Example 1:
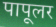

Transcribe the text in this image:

पापूलर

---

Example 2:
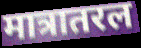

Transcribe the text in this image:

मात्रातरल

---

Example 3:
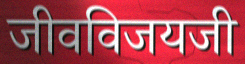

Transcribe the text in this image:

जीवविजयजी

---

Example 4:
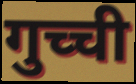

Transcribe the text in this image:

गुच्ची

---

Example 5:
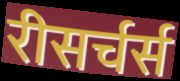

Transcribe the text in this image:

रीसर्चर्स